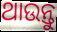
ଥାଉନ୍ତୁ